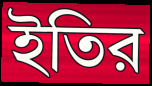
ইতির